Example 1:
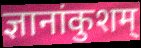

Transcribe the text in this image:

ज्ञानांकुशम्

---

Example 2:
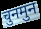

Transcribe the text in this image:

चुनमुन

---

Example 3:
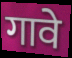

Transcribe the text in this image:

गावे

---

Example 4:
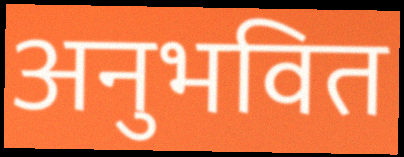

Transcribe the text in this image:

अनुभवित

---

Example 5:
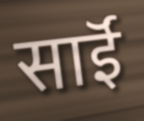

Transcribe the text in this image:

साईॅ